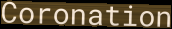
Coronation